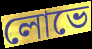
লোভে